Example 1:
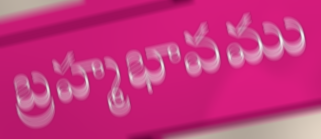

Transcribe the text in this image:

బ్రహ్మభావము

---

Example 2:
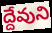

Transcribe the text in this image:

ద్దేవుని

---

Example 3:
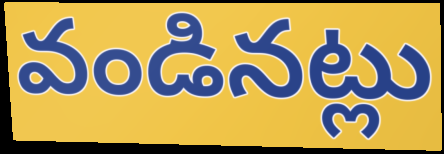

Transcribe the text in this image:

వండినట్లు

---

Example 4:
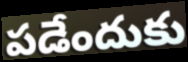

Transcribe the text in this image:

పడేందుకు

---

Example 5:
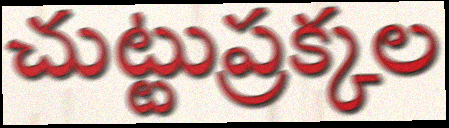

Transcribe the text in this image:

చుట్టుప్రక్కల